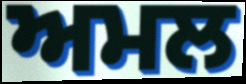
ਅਮਲ